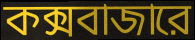
কক্সবাজারে